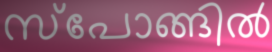
സ്പോങ്ങിൽ